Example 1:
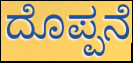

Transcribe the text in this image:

ದೊಪ್ಪನೆ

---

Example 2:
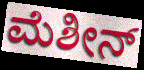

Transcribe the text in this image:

ಮೆಶೀನ್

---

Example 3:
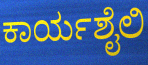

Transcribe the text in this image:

ಕಾರ್ಯಶೈಲಿ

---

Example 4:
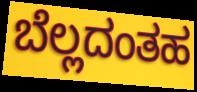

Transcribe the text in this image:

ಬೆಲ್ಲದಂತಹ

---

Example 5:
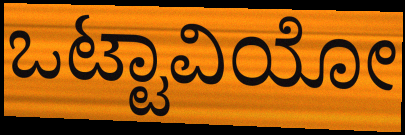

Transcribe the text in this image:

ಒಟ್ಟಾವಿಯೋ